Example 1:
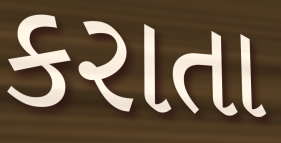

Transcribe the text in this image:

કરાતા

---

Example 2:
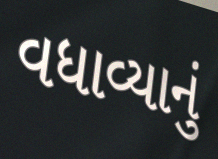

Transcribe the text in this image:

વધાવ્યાનું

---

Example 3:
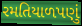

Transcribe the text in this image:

રમતિયાળપણું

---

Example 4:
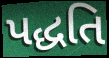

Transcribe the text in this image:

પદ્ધતિ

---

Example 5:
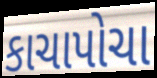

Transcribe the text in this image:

કાચાપોચા